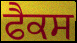
ਫੈਕਸ